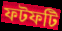
ফটফটি